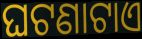
ଘଟଣାଟାଏ